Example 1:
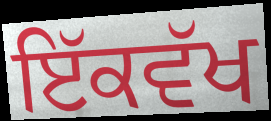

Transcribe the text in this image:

ਇੱਕਵੱਖ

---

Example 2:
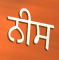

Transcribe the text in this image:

ਨੀਸ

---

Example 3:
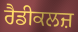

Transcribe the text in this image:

ਰੈਡੀਕਲਜ਼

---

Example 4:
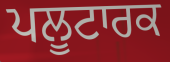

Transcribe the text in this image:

ਪਲੂਟਾਰਕ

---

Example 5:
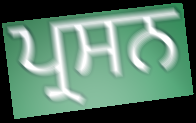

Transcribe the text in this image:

ਪ੍ਰਸਨ